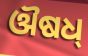
ଔଷଧ୍